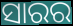
ସାରର